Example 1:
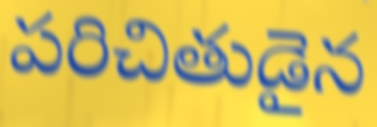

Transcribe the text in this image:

పరిచితుడైన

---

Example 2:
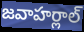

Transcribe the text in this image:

జవాహర్లాల్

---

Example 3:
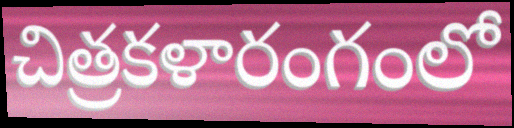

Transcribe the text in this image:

చిత్రకళారంగంలో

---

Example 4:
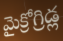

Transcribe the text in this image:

మైక్రోగ్రిడ్ల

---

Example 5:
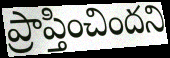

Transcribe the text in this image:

ప్రాప్తించిందని